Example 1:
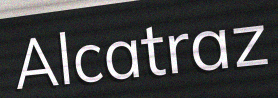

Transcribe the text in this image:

Alcatraz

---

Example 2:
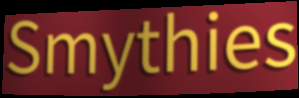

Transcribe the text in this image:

Smythies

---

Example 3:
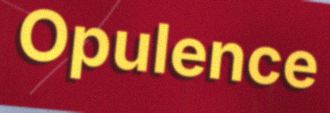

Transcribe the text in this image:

Opulence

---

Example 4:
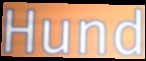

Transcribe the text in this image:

Hund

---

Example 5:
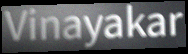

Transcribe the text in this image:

Vinayakar